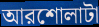
আরশোলাটা